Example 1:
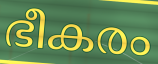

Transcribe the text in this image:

ഭീകരം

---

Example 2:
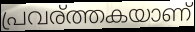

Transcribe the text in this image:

പ്രവര്ത്തകയാണ്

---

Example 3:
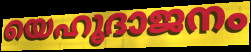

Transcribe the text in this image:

യെഹൂദാജനം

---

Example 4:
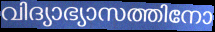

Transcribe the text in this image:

വിദ്യാഭ്യാസത്തിനോ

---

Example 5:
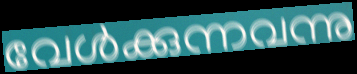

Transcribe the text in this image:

വേൾക്കുന്നവന്നു